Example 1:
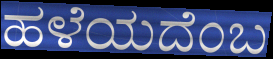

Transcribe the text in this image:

ಹಳೆಯದೆಂಬ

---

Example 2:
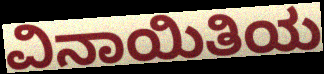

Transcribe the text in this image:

ವಿನಾಯಿತಿಯ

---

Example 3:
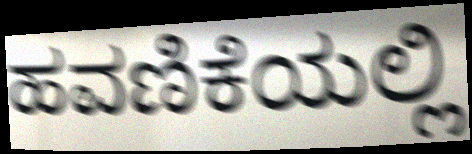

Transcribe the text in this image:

ಹವಣಿಕೆಯಲ್ಲಿ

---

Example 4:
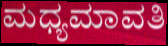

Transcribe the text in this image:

ಮಧ್ಯಮಾವತಿ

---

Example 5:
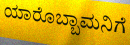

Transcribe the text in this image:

ಯಾರೊಬ್ಬಾಮನಿಗೆ